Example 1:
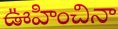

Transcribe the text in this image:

ఊహించినా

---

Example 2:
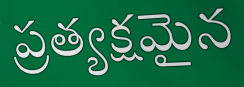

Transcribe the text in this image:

ప్రత్యక్షమైన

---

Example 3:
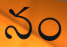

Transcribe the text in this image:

నం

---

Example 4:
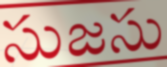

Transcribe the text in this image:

సుజసు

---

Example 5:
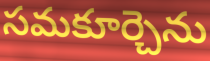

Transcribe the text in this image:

సమకూర్చెను